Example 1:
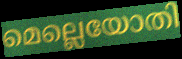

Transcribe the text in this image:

മെല്ലെയോതി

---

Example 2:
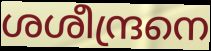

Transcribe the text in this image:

ശശീന്ദ്രനെ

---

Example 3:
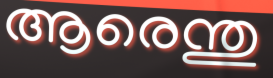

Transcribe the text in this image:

ആരെന്തു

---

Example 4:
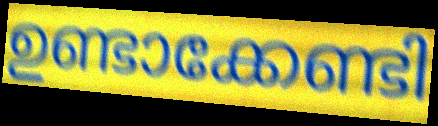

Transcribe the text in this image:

ഉണ്ടാക്കേണ്ടി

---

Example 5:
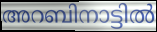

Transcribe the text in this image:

അറബിനാട്ടിൽ